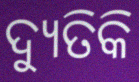
ଦ୍ୟୁତିକି